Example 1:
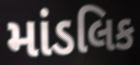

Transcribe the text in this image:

માંડલિક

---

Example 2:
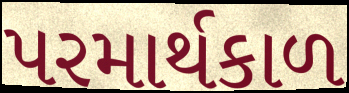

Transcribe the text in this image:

પરમાર્થકાળ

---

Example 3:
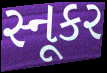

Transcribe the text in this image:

સ્નૂકર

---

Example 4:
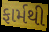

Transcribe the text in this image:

ફાર્મથી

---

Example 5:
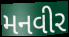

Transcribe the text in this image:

મનવીર